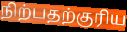
நிற்பதற்குரிய